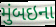
મુંબઇના